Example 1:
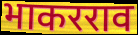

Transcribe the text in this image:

भाकरराव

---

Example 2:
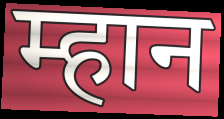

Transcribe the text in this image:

म्हान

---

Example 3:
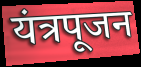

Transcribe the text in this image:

यंत्रपूजन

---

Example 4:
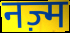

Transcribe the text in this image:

नज़्म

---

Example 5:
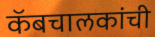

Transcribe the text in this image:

कॅबचालकांची